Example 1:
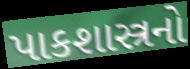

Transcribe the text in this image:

પાકશાસ્ત્રનો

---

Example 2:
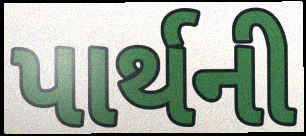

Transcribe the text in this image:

પાર્થની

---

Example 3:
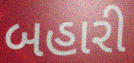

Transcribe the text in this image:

બહારી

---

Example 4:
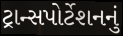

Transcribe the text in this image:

ટ્રાન્સપોર્ટેશનનું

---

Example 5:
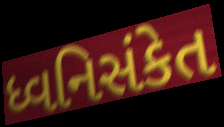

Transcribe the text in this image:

ધ્વનિસંકેત